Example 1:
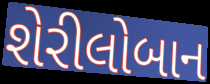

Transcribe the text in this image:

શેરીલોબાન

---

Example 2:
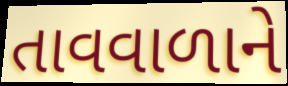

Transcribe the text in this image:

તાવવાળાને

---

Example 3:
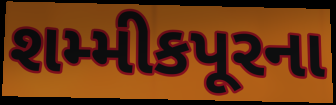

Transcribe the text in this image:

શમ્મીકપૂરના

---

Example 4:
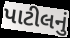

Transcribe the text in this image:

પાટીલનું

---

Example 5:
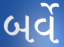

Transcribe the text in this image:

બર્વે